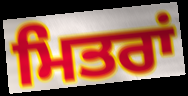
ਮਿਤਰਾਂ